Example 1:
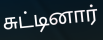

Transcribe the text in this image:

சுட்டினார்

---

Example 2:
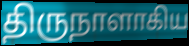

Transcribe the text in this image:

திருநாளாகிய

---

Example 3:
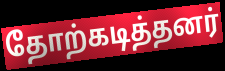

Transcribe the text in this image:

தோற்கடித்தனர்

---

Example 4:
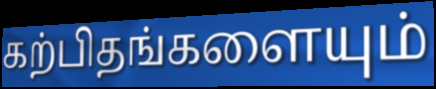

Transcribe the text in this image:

கற்பிதங்களையும்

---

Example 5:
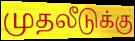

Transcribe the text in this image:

முதலீடுக்கு